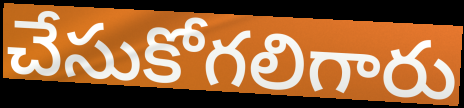
చేసుకోగలిగారు